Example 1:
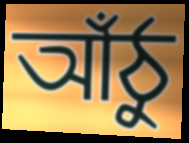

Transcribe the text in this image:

আঁঠু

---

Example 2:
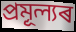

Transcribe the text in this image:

প্ৰমূল্যৰ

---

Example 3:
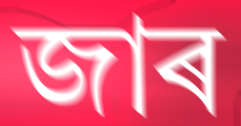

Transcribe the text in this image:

জাৰ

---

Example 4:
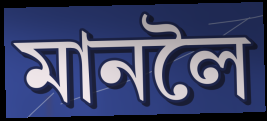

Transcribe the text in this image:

মানলৈ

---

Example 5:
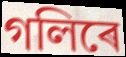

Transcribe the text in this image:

গলিৰে